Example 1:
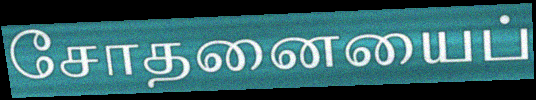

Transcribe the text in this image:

சோதனையைப்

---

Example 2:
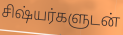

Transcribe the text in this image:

சிஷ்யர்களுடன்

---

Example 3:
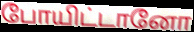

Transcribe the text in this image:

போயிட்டானோ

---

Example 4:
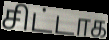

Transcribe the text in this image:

சிட்டாக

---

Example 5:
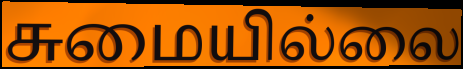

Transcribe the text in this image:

சுமையில்லை